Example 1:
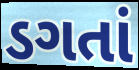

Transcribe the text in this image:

ડગતાં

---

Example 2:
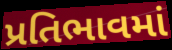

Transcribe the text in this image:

પ્રતિભાવમાં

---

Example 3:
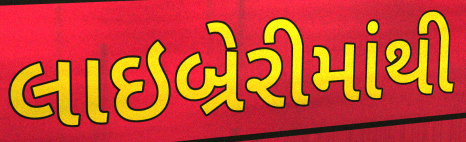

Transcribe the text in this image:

લાઇબ્રેરીમાંથી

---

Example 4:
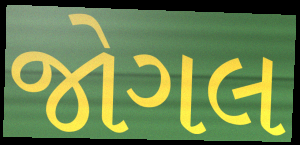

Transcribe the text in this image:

જોગલ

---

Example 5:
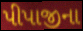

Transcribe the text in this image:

પીપાજીના